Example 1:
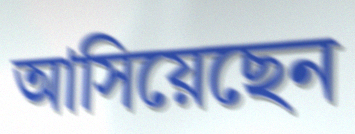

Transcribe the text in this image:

আসিয়েছেন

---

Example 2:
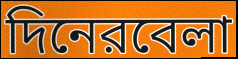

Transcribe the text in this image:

দিনেরবেলা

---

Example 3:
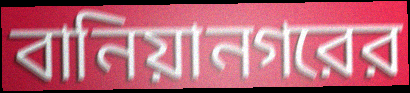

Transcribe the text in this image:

বানিয়ানগরের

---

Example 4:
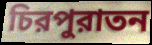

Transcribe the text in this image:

চিরপুরাতন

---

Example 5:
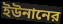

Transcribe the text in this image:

ইউনানের